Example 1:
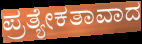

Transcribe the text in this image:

ಪ್ರತ್ಯೇಕತಾವಾದ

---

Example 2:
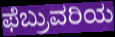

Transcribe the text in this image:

ಫೆಬ್ರುವರಿಯ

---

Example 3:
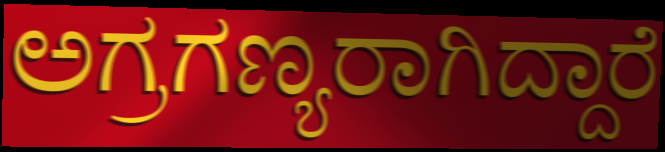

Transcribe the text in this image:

ಅಗ್ರಗಣ್ಯರಾಗಿದ್ದಾರೆ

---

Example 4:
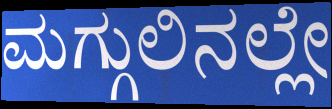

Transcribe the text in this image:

ಮಗ್ಗುಲಿನಲ್ಲೇ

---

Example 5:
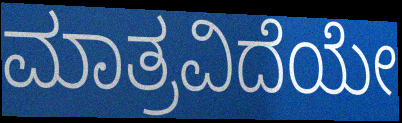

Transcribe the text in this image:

ಮಾತ್ರವಿದೆಯೇ